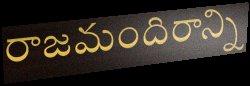
రాజమందిరాన్ని